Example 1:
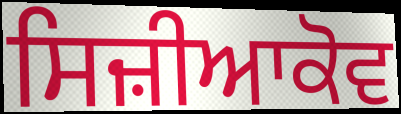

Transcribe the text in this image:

ਸਿਜ਼ੀਆਕੋਵ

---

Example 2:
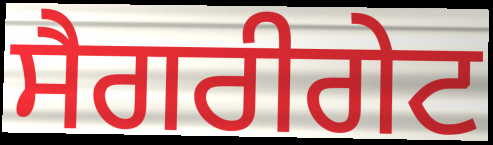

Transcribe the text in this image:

ਸੈਗਰੀਗੇਟ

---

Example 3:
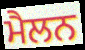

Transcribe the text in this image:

ਮੈਲਨ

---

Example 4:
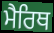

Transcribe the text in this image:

ਮੈਰਿਥ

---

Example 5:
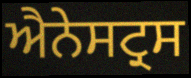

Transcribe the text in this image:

ਐਨੇਸਟ੍ਰਸ